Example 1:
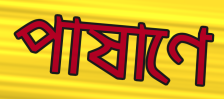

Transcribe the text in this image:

পাষাণে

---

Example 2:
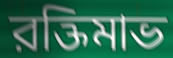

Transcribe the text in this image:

রক্তিমাভ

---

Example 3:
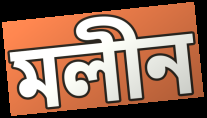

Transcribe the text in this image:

মলীন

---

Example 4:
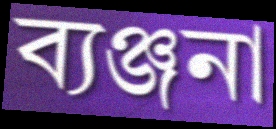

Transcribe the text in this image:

ব্যঞ্জনা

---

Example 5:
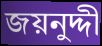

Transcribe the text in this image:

জয়নুদ্দী